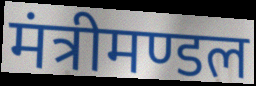
मंत्रीमण्डल